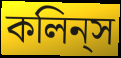
কলিন্‌স